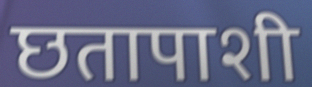
छतापाशी